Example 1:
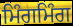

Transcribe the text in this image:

ਮਿੰਗਮਿੰਗ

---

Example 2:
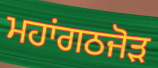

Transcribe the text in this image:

ਮਹਾਂਗਠਜੋਡ਼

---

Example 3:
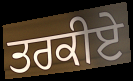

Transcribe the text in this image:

ਤਰਕੀਏ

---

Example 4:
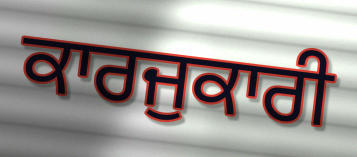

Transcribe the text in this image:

ਕਾਰਜੁਕਾਰੀ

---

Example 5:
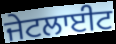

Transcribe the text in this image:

ਜੇਟਲਾਈਟ